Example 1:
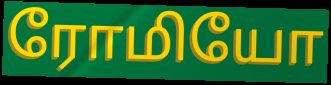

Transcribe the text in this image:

ரோமியோ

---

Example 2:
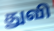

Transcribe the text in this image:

துவி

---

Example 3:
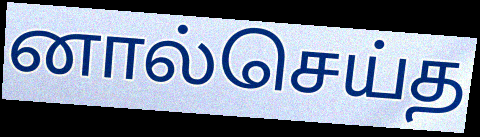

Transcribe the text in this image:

னால்செய்த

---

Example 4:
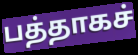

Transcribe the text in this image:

பத்தாகச்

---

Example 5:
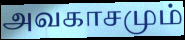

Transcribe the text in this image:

அவகாசமும்